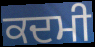
ਕਦਮੀ